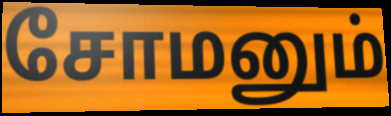
சோமனும்